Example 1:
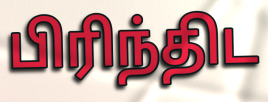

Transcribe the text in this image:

பிரிந்திட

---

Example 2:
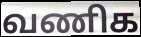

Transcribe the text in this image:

வணிக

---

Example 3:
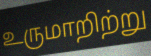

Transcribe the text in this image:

உருமாறிற்று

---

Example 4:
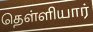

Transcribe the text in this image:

தெள்ளியார்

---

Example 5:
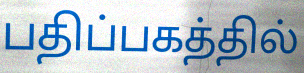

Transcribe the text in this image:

பதிப்பகத்தில்